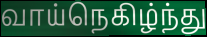
வாய்நெகிழ்ந்து